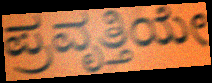
ಪ್ರವೃತ್ತಿಯೇ